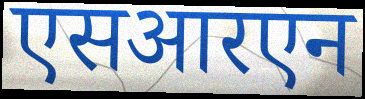
एसआरएन